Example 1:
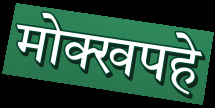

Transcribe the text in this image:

मोक्खपहे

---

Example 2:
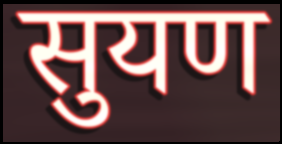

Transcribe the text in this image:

सुयण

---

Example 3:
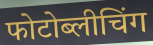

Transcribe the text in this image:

फोटोब्लीचिंग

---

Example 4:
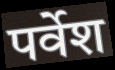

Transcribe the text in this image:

पर्वेश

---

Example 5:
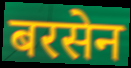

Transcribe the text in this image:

बरसेन